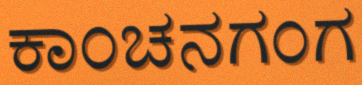
ಕಾಂಚನಗಂಗ